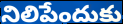
నిలిపేందుకు